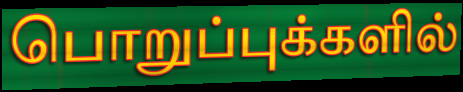
பொறுப்புக்களில்